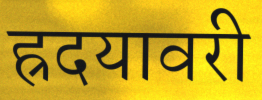
ह्रदयावरी